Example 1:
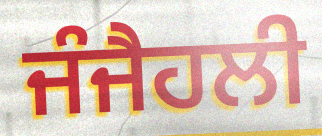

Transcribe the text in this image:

ਜੰਜੈਹਲੀ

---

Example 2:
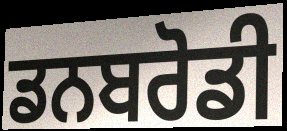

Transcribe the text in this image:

ਡਨਬਰੋਡੀ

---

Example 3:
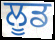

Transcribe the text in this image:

ਲੂਡ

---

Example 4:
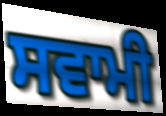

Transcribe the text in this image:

ਸਵਾਮੀ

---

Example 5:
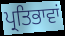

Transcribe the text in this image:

ਪ੍ਰਤਿਭਾਵਾਂ